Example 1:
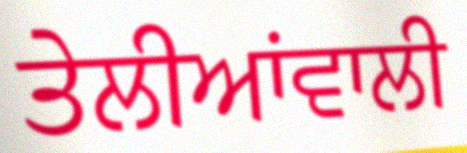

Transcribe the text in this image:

ਤੇਲੀਆਂਵਾਲੀ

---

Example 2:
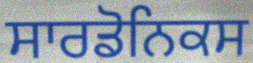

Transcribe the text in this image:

ਸਾਰਡੋਨਿਕਸ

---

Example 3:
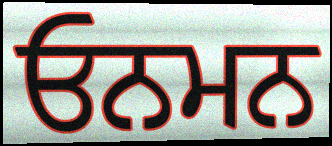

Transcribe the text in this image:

ਓਨਮਨ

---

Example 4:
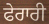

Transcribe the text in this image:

ਫੇਰਾਰੀ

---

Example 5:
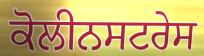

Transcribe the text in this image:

ਕੋਲੀਨਸਟਰੇਸ